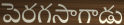
పెరగసాగాడు